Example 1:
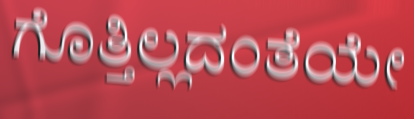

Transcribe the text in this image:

ಗೊತ್ತಿಲ್ಲದಂತೆಯೇ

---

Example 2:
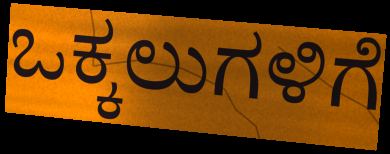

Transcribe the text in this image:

ಒಕ್ಕಲುಗಳಿಗೆ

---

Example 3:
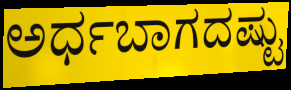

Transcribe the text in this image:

ಅರ್ಧಬಾಗದಷ್ಟು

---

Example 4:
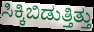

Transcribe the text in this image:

ಸಿಕ್ಕಿಬಿಡುತ್ತಿತ್ತು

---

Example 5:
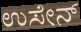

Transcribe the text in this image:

ಉಸೇನ್